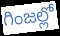
గింజల్లో